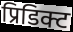
प्रिडिक्ट